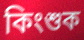
কিংশুক